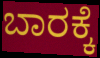
ಬಾರಕ್ಕೆ